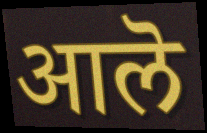
आलॆ